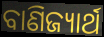
ବାଣିଜ୍ୟାର୍ଥ